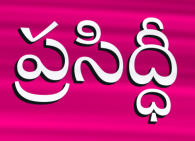
ప్రసిద్ధీ